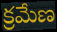
క్రమేణ